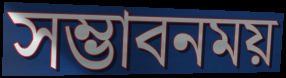
সম্ভাবনময়